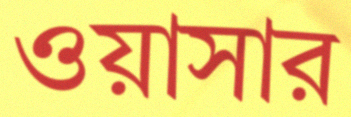
ওয়াসার